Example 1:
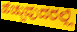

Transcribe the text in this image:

ಹೆಚ್ಚುವುದರಲ್ಲಿ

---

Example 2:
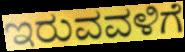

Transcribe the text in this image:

ಇರುವವಳಿಗೆ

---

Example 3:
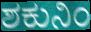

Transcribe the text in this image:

ಶಕುನಿಂ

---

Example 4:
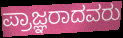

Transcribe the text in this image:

ಪ್ರಾಜ್ಞರಾದವರು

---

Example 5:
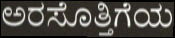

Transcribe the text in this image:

ಅರಸೊತ್ತಿಗೆಯ